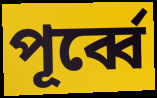
পূৰ্ব্বে